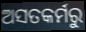
ଅସତକର୍ମରୁ